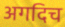
अगदिच